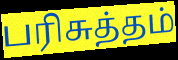
பரிசுத்தம்